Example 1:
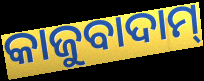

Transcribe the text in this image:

କାଜୁବାଦାମ୍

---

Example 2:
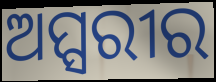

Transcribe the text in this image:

ଅପ୍ସରୀର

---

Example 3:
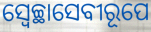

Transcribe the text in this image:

ସ୍ଵେଚ୍ଛାସେବୀରୂପେ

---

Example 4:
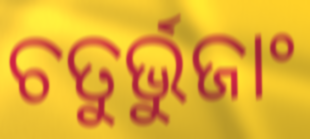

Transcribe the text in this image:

ଚତୁର୍ଭୁଜାଂ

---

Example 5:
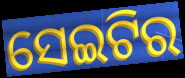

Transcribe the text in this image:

ସେଇଟିର